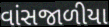
વાંસજાળીયા